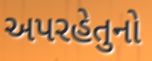
અપરહેતુનો